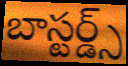
బాస్టర్డ్స్